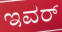
ಇವರ್